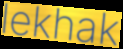
lekhak